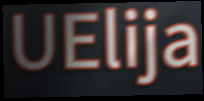
UElija